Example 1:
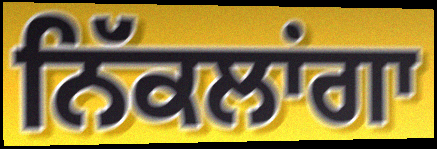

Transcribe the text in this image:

ਨਿੱਕਲਾਂਗਾ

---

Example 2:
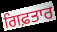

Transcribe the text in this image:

ਗਿਫ਼ਤਾਰ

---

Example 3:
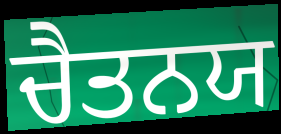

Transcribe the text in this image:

ਚੈਤਨਯ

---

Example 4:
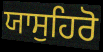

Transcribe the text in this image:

ਯਾਸੁਹਿਰੋ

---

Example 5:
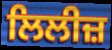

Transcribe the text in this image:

ਲਿਲੀਜ਼